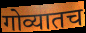
गोव्यातच